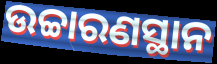
ଉଚ୍ଚାରଣସ୍ଥାନ